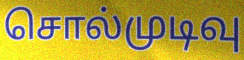
சொல்முடிவு